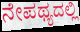
ನೇಪಥ್ಯದಲ್ಲಿ